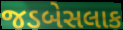
જડબેસલાક